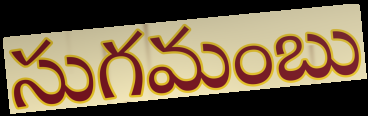
సుగమంబు